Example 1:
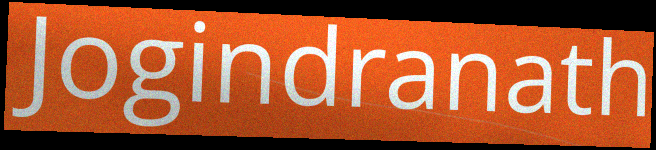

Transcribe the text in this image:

Jogindranath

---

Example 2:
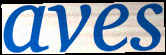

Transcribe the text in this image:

aves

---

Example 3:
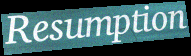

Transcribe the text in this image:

Resumption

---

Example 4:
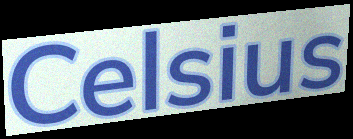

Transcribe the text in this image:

Celsius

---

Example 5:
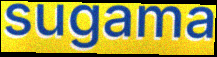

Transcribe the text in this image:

sugama